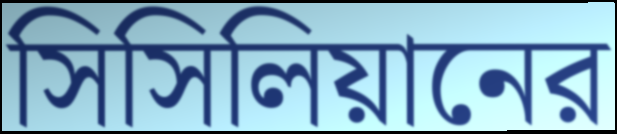
সিসিলিয়ানের